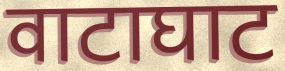
वाटाघाट